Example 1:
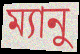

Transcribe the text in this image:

ম্যানু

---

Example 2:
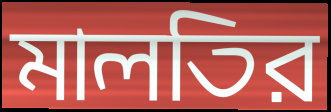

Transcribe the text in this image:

মালতির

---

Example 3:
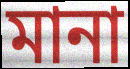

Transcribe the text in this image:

মানা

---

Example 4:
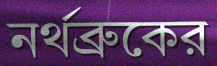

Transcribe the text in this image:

নর্থব্রুকের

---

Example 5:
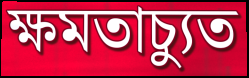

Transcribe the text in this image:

ক্ষমতাচ্যুত